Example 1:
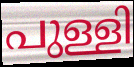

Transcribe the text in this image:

പുള്ളി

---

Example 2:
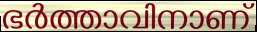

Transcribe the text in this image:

ഭർത്താവിനാണ്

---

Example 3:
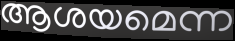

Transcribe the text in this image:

ആശയമെന്ന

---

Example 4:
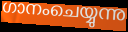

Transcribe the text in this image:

ഗാനംചെയ്യുന്നു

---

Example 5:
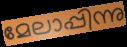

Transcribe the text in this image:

മേലാപ്പിന്നു